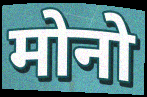
मोनो